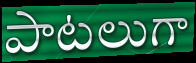
పాటలుగా